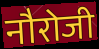
नौरोजी